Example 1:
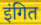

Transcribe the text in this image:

इंगित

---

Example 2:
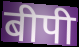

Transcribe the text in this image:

बीपी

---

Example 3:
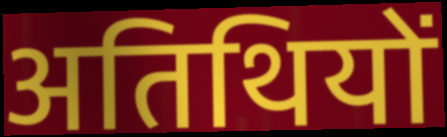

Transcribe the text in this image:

अतिथियों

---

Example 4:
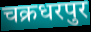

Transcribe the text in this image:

चक्रधरपुर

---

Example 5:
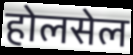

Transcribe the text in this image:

होलसेल